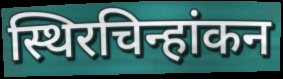
स्थिरचिन्हांकन